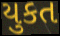
યુકત